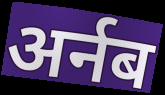
अर्नब